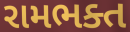
રામભક્ત